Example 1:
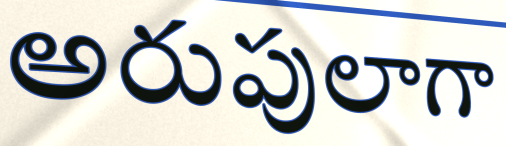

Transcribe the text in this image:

అరుపులాగా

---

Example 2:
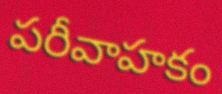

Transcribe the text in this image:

పరీవాహకం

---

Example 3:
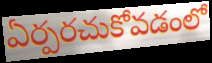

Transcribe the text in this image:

ఏర్పరచుకోవడంలో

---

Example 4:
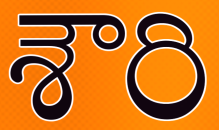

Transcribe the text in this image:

శౌరి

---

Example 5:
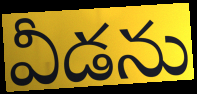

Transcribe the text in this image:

వీడను